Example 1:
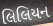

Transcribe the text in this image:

લિલિયન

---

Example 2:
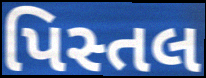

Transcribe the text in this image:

પિસ્તલ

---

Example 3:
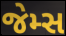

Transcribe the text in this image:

જેમ્સ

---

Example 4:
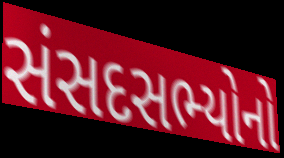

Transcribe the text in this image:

સંસદસભ્યોનો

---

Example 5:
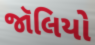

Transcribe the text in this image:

જૉલિયો